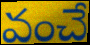
వంచే